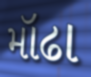
મૉઢા